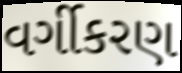
વર્ગીકરણ